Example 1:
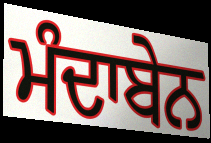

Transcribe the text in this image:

ਮੰਦਾਬੇਨ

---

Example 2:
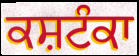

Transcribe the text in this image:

ਕਸ਼ਟੰਕਾ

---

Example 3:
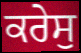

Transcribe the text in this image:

ਕਰੇਸੁ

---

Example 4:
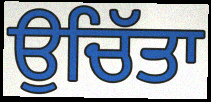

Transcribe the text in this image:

ਉਚਿੱਤਾ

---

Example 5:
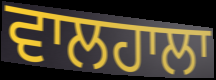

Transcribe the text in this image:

ਵਾਲਹਾਲਾ